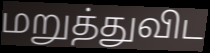
மறுத்துவிட